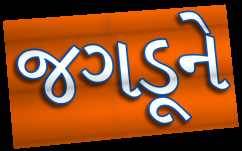
જગડૂને